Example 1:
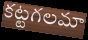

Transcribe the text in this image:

కట్టగలమా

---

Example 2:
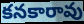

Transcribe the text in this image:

కనకారావు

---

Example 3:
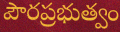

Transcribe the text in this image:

పౌరప్రభుత్వం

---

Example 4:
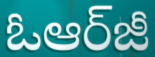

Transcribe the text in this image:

ఓఆర్‌జీ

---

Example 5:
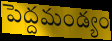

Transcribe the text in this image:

పెద్దమండ్యం